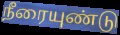
நீரையுண்டு